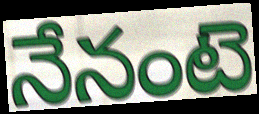
నేనంటె